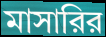
মাসারির